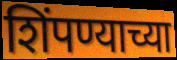
शिंपण्याच्या